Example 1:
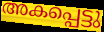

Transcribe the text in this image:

അകപ്പെട്ടു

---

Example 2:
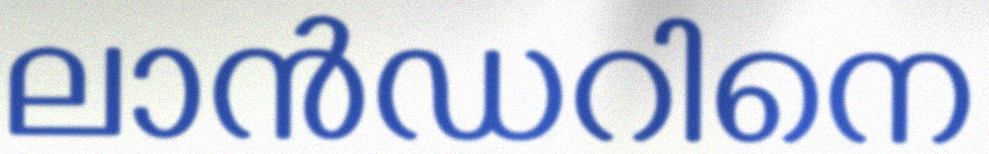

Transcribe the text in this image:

ലാൻഡറിനെ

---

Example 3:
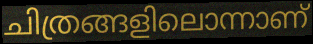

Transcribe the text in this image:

ചിത്രങ്ങളിലൊന്നാണ്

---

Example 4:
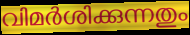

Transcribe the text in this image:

വിമർശിക്കുന്നതും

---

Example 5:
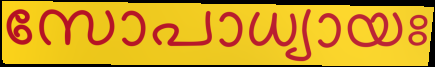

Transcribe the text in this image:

സോപാധ്യായഃ